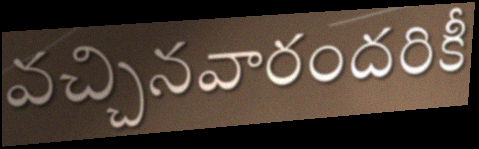
వచ్చినవారందరికీ